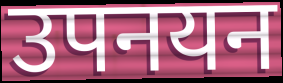
उपनयन